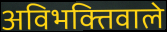
अविभक्तिवाले